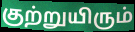
குற்றுயிரும்